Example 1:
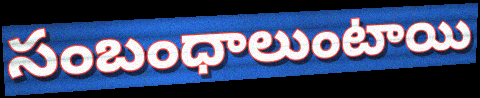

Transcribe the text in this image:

సంబంధాలుంటాయి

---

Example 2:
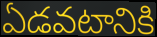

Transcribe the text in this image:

ఏడవటానికి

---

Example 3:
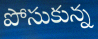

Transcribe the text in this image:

పోసుకున్న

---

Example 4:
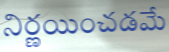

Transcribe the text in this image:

నిర్ణయించడమే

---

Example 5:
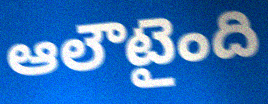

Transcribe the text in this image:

ఆలౌటైంది